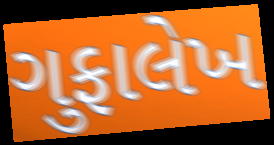
ગુફાલેખ